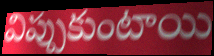
విప్పుకుంటాయి